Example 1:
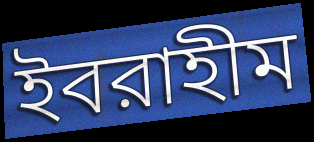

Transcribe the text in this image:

ইবরাহীম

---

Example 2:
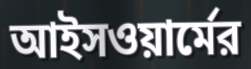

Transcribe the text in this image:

আইসওয়ার্মের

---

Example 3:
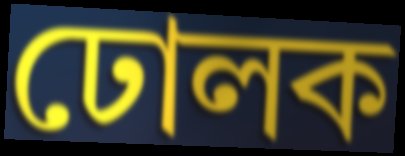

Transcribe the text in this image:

ঢোলক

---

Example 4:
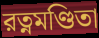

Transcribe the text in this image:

রত্নমণ্ডিতা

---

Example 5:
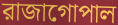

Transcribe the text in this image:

রাজাগোপাল